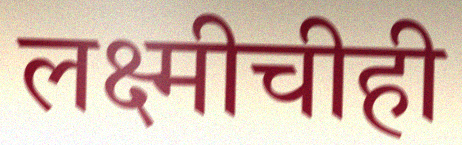
लक्ष्मीचीही